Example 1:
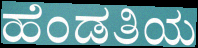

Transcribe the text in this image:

ಹೆಂಡತಿಯ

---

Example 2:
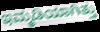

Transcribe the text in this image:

ಇಮ್ಮಡಿಯಾಗಿತ್ತು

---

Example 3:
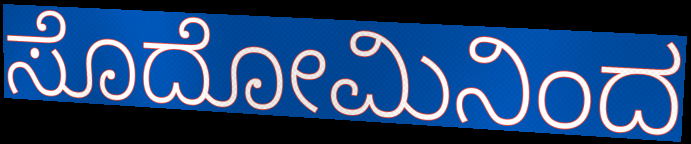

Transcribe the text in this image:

ಸೊದೋಮಿನಿಂದ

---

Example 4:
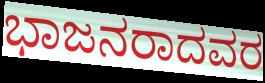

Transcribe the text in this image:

ಭಾಜನರಾದವರ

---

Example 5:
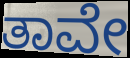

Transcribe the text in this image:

ತಾವೇ